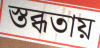
স্তব্ধতায়